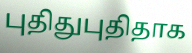
புதிதுபுதிதாக